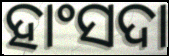
ହାଂସଦା